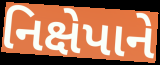
નિક્ષેપાને